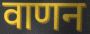
वाणन